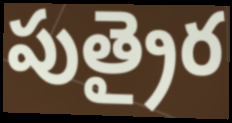
పుత్రైర